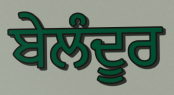
ਬੇਲੰਦੂਰ